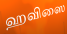
ஹவிஸை